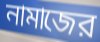
নামাজের